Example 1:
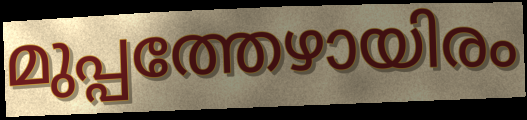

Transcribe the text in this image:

മുപ്പത്തേഴായിരം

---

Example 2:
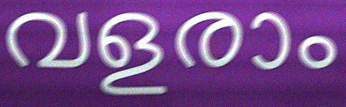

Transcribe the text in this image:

വളരാം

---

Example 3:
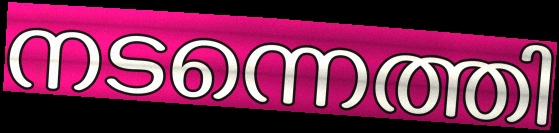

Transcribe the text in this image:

നടന്നെത്തി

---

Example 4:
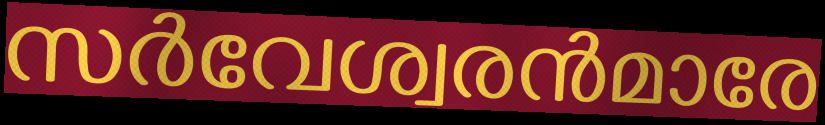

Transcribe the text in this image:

സർവേശ്വരൻമാരേ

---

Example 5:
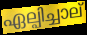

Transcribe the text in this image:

ഏല്പിച്ചാല്